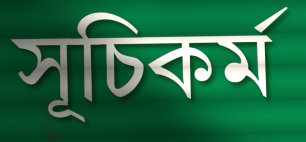
সূচিকর্ম